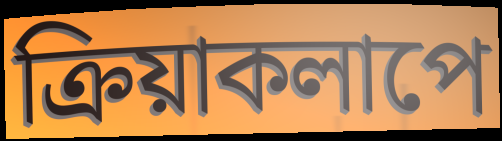
ক্রিয়াকলাপে